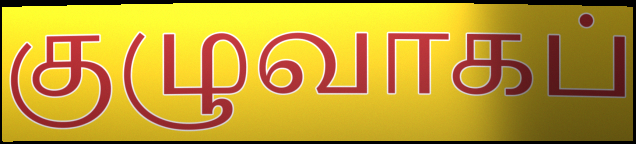
குழுவாகப்